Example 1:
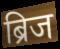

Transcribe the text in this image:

ब्रिज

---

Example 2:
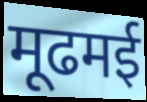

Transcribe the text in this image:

मूढमई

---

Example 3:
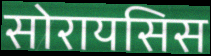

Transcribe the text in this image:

सोरायसिस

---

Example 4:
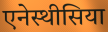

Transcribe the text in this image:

एनेस्थीसिया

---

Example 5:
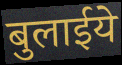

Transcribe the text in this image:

बुलाईये